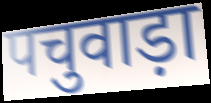
पचुवाड़ा